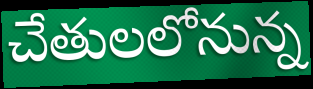
చేతులలోనున్న